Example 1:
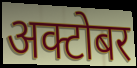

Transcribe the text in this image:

अक्टोबर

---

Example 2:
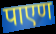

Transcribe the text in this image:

पाएण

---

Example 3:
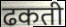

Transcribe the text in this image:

ढकती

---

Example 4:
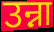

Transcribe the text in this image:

उन्ना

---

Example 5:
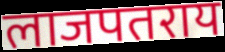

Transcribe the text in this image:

लाजपतराय